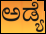
ಅಡ್ಯೆ